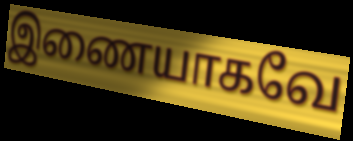
இணையாகவே